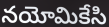
నయోమికేసి